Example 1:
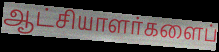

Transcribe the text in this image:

ஆட்சியாளர்களைப்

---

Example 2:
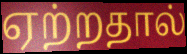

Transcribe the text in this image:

ஏற்றதால்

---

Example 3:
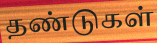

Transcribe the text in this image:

தண்டுகள்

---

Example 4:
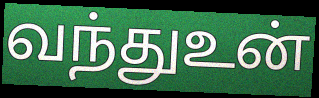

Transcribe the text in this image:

வந்துஉன்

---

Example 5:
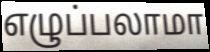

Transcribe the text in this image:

எழுப்பலாமா